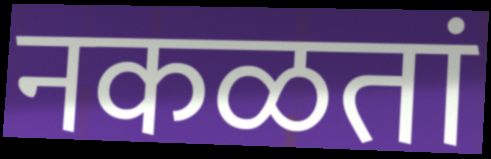
नकळतां